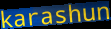
karashun